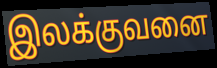
இலக்குவனை